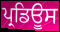
ਪ੍ਰਡਿਊਸ